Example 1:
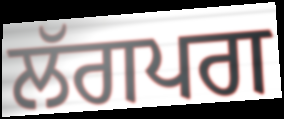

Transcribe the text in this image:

ਲੱਗਪਗ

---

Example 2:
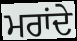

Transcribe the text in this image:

ਮਰਾਂਦੇ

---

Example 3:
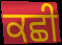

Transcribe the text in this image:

ਕਛੀ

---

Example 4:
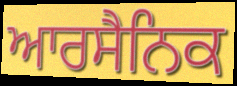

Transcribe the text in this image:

ਆਰਸੈਨਿਕ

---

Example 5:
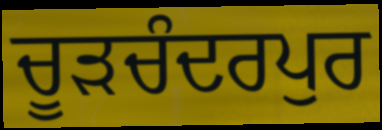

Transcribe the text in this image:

ਚੂੜਚੰਦਰਪੁਰ